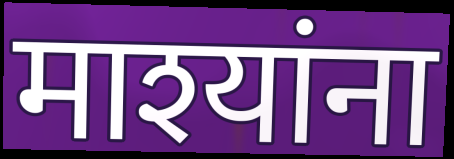
माश्यांना